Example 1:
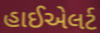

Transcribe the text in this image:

હાઈએલર્ટ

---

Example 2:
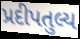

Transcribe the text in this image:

પ્રદીપતુલ્ય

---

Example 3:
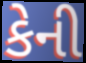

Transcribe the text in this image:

કેની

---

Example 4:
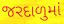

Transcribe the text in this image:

જરદાળુમાં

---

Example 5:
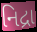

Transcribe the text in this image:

નિદ્રા